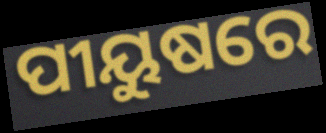
ପୀୟୁଷରେ